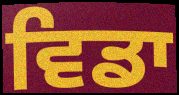
ਵਿਡਾ